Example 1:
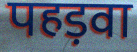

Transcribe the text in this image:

पहड़वा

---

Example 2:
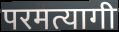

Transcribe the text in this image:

परमत्यागी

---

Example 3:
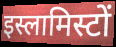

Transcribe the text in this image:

इस्लामिस्टों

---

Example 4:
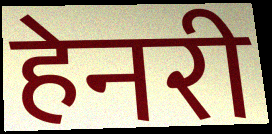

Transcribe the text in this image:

हेनरी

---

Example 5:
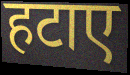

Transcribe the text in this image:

हटाए